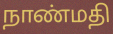
நாண்மதி